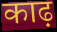
काढ़